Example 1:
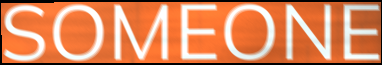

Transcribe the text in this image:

SOMEONE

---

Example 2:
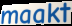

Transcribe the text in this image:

maakt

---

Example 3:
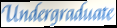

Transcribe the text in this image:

Undergraduate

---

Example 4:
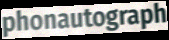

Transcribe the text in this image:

phonautograph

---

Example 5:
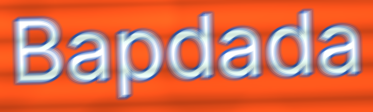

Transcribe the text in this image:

Bapdada